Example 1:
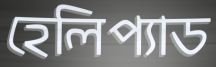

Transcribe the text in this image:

হেলিপ্যাড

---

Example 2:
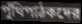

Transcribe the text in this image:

পুঁথিপাঠকদের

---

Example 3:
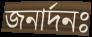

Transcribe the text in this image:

জনার্দনঃ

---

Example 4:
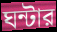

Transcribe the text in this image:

ঘন্টার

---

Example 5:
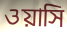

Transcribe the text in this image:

ওয়াসি